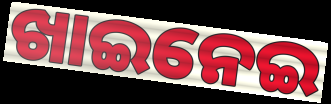
ଖାଇନେଇ